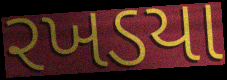
રખડયા